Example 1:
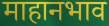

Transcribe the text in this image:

माहानभाव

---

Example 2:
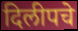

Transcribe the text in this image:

दिलीपचे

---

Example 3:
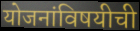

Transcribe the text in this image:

योजनांविषयीची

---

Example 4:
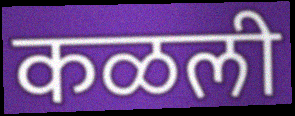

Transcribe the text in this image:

कळली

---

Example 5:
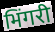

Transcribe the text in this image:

भिंगरी